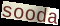
sooda